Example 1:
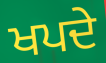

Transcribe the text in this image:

ਖਪਦੇ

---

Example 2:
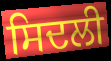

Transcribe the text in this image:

ਸਿਦਲੀ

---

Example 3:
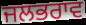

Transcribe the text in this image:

ਜਲਭਰਾਵ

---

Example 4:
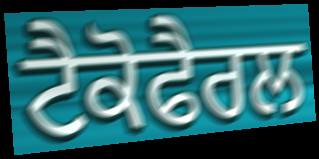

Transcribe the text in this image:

ਟੈਕੋਫੈਰਲ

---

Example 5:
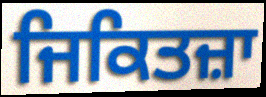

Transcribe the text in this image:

ਜਿਕਿਤਜ਼ਾ